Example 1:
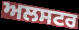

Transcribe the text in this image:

ਅਲਸਟਰ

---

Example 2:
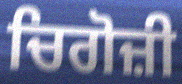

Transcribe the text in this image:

ਚਿਗੋਜ਼ੀ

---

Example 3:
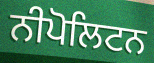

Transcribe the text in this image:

ਨੀਪੋਲਿਟਨ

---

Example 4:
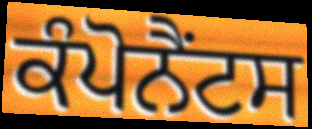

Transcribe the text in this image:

ਕੰਪੋਨੈਂਟਸ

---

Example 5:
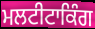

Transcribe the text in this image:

ਮਲਟੀਟਾਕਿੰਗ